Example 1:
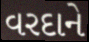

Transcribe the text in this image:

વરદાને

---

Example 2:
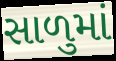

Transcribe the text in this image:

સાળુમાં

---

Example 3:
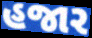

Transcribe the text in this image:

હજાર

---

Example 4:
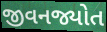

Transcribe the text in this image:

જીવનજ્યોત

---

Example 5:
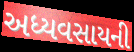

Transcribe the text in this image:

અધ્યવસાયની